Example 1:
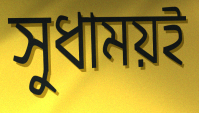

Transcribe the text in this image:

সুধাময়ই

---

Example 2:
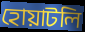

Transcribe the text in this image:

হোয়াটলি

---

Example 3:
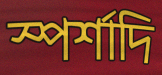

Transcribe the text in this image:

স্পর্শাদি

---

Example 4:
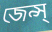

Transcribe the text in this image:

জেন্স্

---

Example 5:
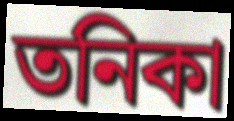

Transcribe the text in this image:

তনিকা